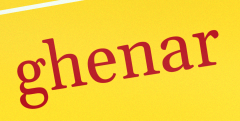
ghenar